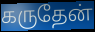
கருதேன்